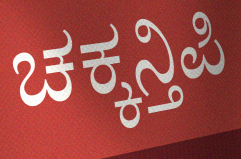
ಚಕ್ಕನ್ತಿಪಿ